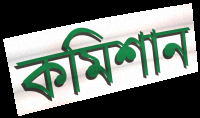
কমিশান